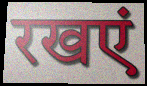
रखएं